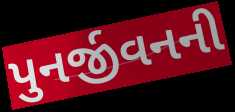
પુનર્જીવનની